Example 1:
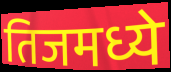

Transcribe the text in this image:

तिजमध्ये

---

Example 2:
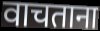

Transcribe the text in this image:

वाचताना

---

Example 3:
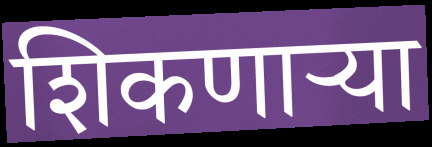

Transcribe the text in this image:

शिकणार्‍या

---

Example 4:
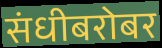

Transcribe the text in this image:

संधीबरोबर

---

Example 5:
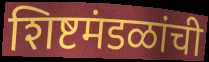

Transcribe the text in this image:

शिष्टमंडळांची